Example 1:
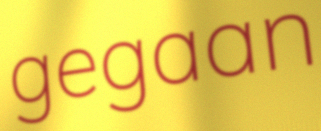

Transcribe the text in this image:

gegaan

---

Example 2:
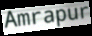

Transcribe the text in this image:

Amrapur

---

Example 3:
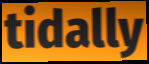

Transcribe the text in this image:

tidally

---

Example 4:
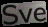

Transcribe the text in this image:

Sve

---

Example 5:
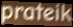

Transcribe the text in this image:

prateik